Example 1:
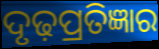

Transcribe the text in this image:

ଦୃଢ଼ପ୍ରତିଜ୍ଞାର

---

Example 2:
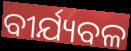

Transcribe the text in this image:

ବୀର୍ଯ୍ୟବଳ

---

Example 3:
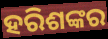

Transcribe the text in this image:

ହରିଶଙ୍କର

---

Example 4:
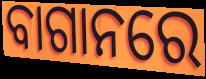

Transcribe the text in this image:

ବାଗାନରେ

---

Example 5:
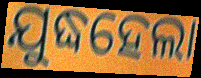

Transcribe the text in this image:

ଯୁଦ୍ଧହେଲା